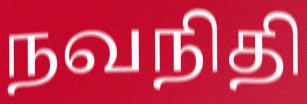
நவநிதி